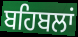
ਬਹਿਬਲਾਂ